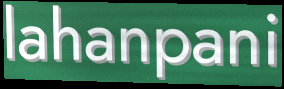
lahanpani